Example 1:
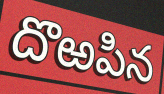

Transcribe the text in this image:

దొఱపిన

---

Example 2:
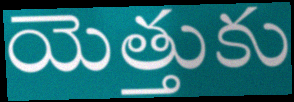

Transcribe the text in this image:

యెత్తుకు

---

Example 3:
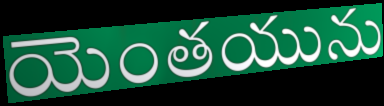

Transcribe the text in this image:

యెంతయును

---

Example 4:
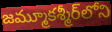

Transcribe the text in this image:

జమ్మూకశ్మీర్‌లోని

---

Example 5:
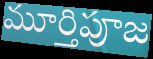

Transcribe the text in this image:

మూర్తిపూజ